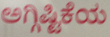
ಅಗ್ಗಿಷ್ಟಿಕೆಯ